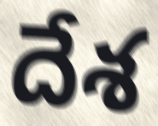
దేశ